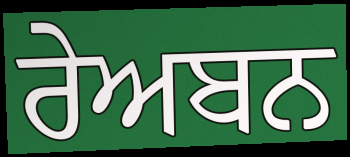
ਰੇਅਬਨ